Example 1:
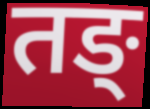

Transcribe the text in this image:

तङ्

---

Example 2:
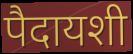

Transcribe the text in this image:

पैदायशी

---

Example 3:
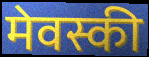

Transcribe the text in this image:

मेवस्की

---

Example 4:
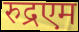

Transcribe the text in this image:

रुद्रएम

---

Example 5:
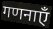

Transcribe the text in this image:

गणनाएँ